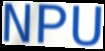
NPU